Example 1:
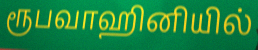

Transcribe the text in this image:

ரூபவாஹினியில்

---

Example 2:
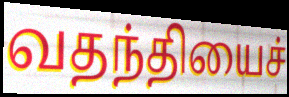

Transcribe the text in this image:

வதந்தியைச்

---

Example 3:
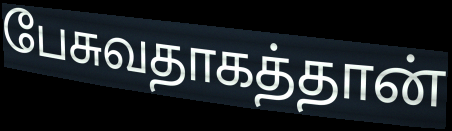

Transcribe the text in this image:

பேசுவதாகத்தான்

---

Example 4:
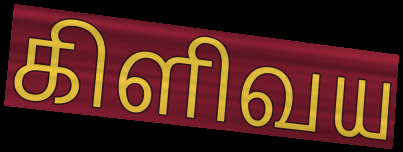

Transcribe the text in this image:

கிளிவய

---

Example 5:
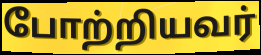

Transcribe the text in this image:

போற்றியவர்